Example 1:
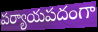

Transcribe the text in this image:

పర్యాయపదంగా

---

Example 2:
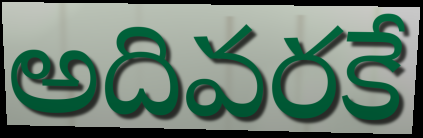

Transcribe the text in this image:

అదివరకే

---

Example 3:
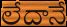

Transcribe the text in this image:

లేదానే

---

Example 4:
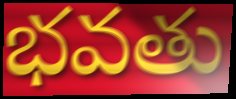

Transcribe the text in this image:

భవతు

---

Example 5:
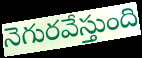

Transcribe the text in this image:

నెగురవేస్తుంది